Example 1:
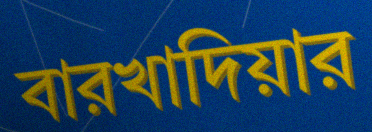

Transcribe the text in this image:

বারখাদিয়ার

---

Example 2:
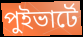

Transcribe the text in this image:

পুইভার্টে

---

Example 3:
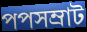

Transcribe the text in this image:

পপসম্রাট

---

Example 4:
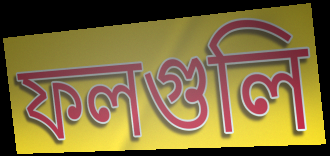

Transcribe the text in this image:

ফলগুলি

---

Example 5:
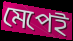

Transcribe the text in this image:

মেপেই